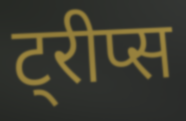
ट्रीप्स